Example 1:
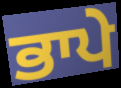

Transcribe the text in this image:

ਭਾਪੇ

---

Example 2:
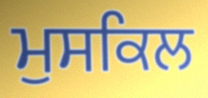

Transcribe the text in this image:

ਮੁਸਕਿਲ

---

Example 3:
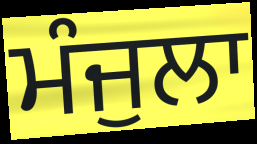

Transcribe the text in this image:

ਮੰਜੁਲਾ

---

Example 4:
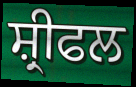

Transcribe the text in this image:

ਸ਼੍ਰੀਫਲ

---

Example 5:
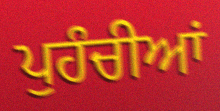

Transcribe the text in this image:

ਪੁਹੰਚੀਆਂ